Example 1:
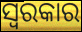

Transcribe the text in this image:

ସ୍ୱରକାର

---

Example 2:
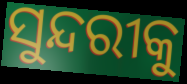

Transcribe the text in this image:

ସୁନ୍ଦରୀକୁ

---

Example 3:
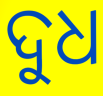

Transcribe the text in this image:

ଦୁଧ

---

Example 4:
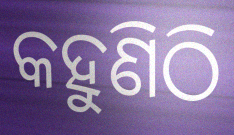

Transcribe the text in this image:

କହୁଣିଠି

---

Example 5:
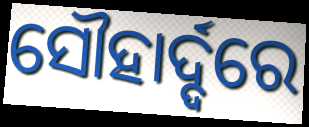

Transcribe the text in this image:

ସୌହାର୍ଦ୍ଦରେ